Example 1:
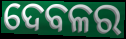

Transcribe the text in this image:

ଦେବଳର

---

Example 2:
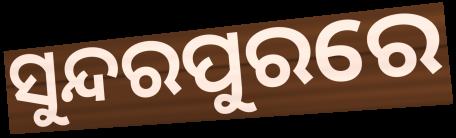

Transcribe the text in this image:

ସୁନ୍ଦରପୁରରେ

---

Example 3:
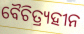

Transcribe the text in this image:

ବୈଚିତ୍ର୍ୟହୀନ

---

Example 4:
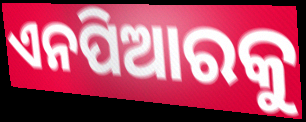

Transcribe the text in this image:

ଏନପିଆରକୁ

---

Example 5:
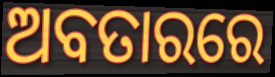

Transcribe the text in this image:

ଅବତାରରେ